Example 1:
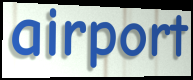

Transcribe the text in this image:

airport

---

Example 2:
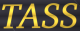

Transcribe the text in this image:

TASS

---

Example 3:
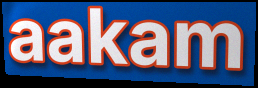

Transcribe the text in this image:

aakam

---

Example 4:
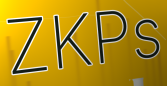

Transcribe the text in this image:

ZKPs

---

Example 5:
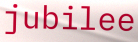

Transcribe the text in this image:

jubilee